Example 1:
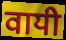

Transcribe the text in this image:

वायी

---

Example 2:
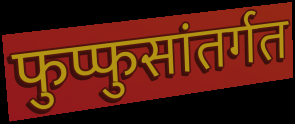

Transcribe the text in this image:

फुप्फुसांतर्गत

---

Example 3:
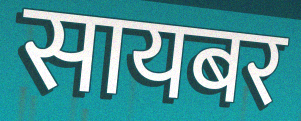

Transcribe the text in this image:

सायबर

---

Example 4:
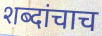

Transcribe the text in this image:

शब्दांचाच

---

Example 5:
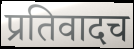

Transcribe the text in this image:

प्रतिवादच